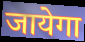
जायेगा